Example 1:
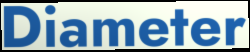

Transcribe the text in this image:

Diameter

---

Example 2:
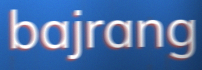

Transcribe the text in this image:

bajrang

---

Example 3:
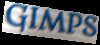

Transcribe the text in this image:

GIMPS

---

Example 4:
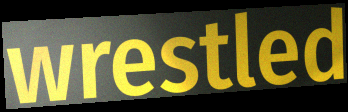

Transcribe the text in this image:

wrestled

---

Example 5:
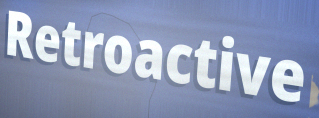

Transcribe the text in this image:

Retroactive